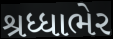
શ્રધ્ધાભેર